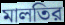
মালতির